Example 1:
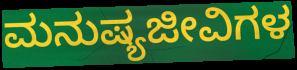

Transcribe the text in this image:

ಮನುಷ್ಯಜೀವಿಗಳ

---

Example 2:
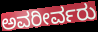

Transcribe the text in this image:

ಅವರೀರ್ವರು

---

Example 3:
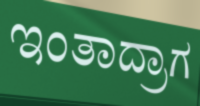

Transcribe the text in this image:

ಇಂತಾದ್ರಾಗ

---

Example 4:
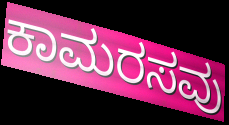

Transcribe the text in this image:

ಕಾಮರಸವು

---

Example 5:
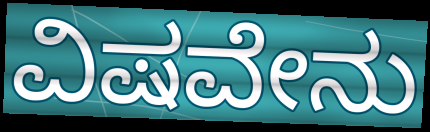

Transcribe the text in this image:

ವಿಷವೇನು